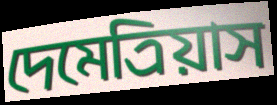
দেমেত্রিয়াস